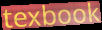
texbook